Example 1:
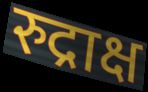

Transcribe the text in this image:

रुद्राक्ष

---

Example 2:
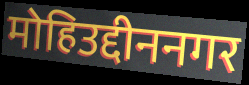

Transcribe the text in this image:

मोहिउद्दीननगर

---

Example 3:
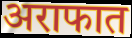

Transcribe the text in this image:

अराफात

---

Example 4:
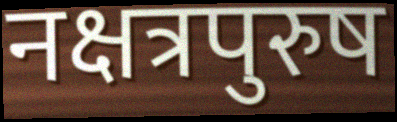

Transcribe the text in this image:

नक्षत्रपुरुष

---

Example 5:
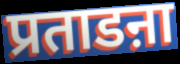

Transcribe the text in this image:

प्रताडऩा